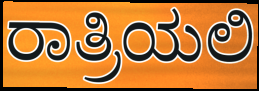
ರಾತ್ರಿಯಲಿ